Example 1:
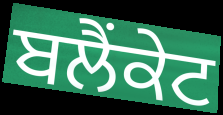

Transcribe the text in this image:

ਬਲੈਂਕੇਟ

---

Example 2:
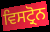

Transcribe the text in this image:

ਵਿਸਟ੍ਰੋਨ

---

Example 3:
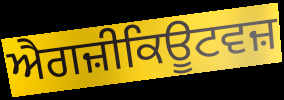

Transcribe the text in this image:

ਐਗਜ਼ੀਕਿਊਟਵਜ਼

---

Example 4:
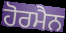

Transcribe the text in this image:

ਹੋਰਮੈਨ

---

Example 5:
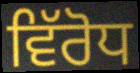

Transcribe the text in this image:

ਵਿੱਰੋਧ